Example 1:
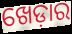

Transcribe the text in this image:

ଖେଡ଼ାର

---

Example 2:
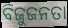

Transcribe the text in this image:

ବିଜୁଜନତା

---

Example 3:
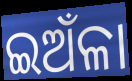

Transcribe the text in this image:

ଇଅଁଳା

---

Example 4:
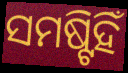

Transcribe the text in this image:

ସମଷ୍ଟିହିଁ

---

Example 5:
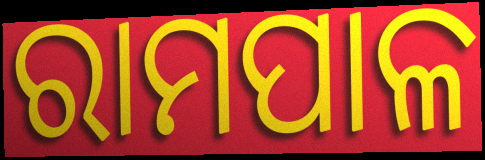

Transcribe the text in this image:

ରାମପାଳ